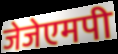
जेजेएमपी